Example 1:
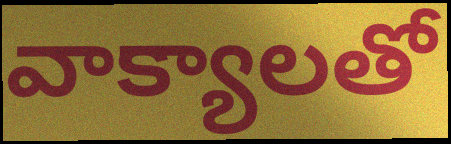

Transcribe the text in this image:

వాక్యాలతో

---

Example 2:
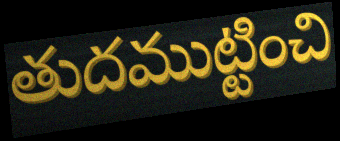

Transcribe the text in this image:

తుదముట్టించి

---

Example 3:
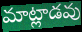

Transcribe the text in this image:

మాట్లాడవు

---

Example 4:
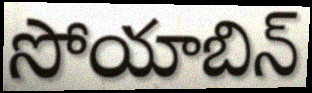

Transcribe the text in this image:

సోయాబిన్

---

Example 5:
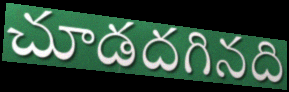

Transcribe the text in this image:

చూడదగినది